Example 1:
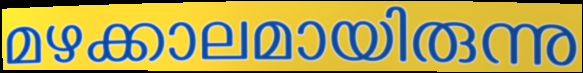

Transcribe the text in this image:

മഴക്കാലമായിരുന്നു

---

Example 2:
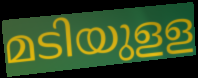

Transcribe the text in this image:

മടിയുളള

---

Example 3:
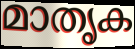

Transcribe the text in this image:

മാതൃക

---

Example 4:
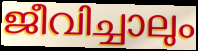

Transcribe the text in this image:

ജീവിച്ചാലും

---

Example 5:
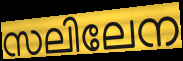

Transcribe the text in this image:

സലിലേന